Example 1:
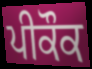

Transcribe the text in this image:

ਪੀਕੌਕ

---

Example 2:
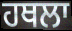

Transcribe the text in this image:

ਹਥਲਾ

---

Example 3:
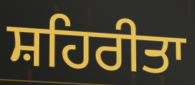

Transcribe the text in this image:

ਸ਼ਹਿਰੀਤਾ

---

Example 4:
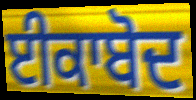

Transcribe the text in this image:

ਈਕਾਬੋਦ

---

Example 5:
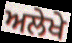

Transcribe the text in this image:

ਅਲੇਖੇ